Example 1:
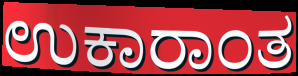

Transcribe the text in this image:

ಉಕಾರಾಂತ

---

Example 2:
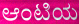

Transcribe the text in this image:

ಆಂಟಿಯ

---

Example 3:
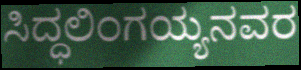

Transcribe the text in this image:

ಸಿದ್ಧಲಿಂಗಯ್ಯನವರ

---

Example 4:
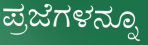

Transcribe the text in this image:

ಪ್ರಜೆಗಳನ್ನೂ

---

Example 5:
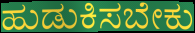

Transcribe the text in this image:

ಹುಡುಕಿಸಬೇಕು